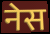
नेस